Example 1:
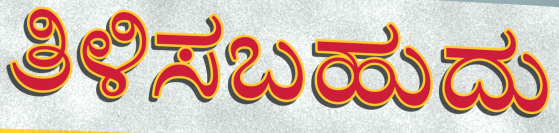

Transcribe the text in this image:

ತಿಳಿಸಬಹುದು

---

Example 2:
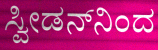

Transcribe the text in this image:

ಸ್ವೀಡನ್‌ನಿಂದ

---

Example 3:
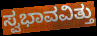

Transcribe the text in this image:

ಸ್ವಭಾವವಿತ್ತು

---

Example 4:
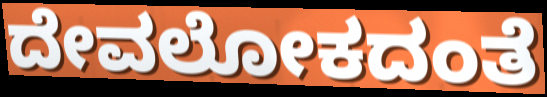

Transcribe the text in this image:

ದೇವಲೋಕದಂತೆ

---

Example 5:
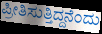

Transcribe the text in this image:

ಪ್ರೀತಿಸುತ್ತಿದ್ದನೆಂದು